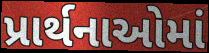
પ્રાર્થનાઓમાં